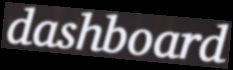
dashboard